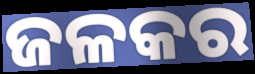
ଜଳକର